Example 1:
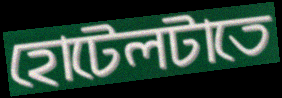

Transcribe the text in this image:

হোটেলটাতে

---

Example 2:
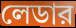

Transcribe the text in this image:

লেডার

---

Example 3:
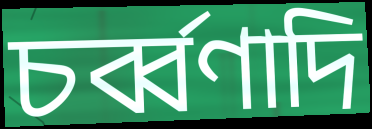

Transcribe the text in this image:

চর্ব্বণাদি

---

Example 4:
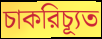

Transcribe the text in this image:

চাকরিচ্যূত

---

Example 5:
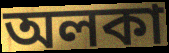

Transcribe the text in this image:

অলকা